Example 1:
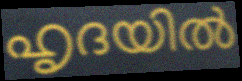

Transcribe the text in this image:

ഹൃദയിൽ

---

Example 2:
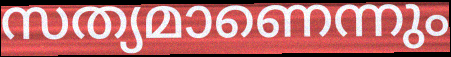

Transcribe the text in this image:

സത്യമാണെന്നും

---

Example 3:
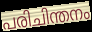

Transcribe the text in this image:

പരിചിന്തനം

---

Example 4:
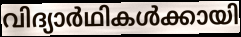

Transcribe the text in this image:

വിദ്യാർഥികൾക്കായി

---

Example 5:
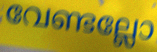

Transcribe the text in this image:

വേണ്ടല്ലോ